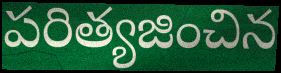
పరిత్యజించిన